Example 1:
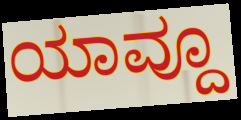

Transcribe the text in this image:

ಯಾವ್ದೂ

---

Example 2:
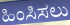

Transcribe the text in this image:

ಹಿಂಸಿಸಲು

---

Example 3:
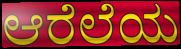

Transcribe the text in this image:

ಆರೆಲೆಯ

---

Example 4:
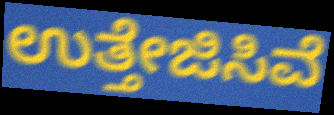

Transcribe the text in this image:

ಉತ್ತೇಜಿಸಿವೆ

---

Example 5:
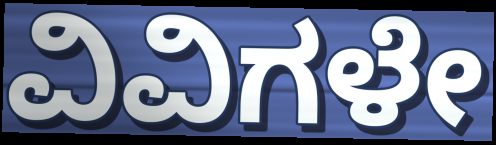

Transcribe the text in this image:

ವಿವಿಗಳೇ